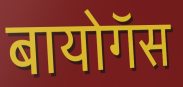
बायोगॅस